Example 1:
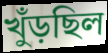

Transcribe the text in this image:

খুঁড়ছিল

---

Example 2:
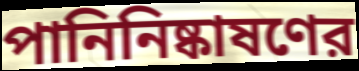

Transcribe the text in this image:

পানিনিষ্কাষণের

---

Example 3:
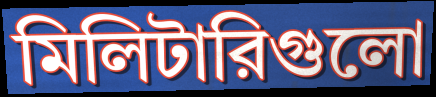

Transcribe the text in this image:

মিলিটারিগুলো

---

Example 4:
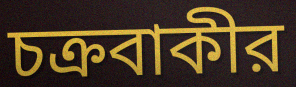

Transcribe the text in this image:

চক্রবাকীর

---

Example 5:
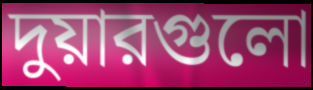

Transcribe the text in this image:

দুয়ারগুলো